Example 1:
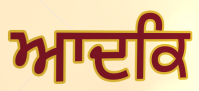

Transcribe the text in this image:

ਆਦਕਿ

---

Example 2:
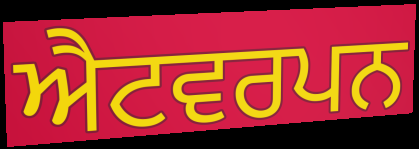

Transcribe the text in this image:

ਐਟਵਰਪਨ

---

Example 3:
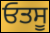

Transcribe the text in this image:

ਓਤਸੂ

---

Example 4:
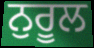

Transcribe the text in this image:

ਨੁਰੂਲ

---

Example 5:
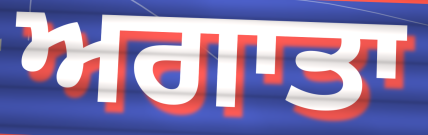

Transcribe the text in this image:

ਅਗਾਤਾ